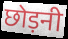
छोड़नी